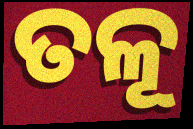
ତଳୂ